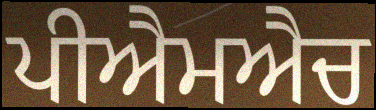
ਪੀਐਮਐਚ